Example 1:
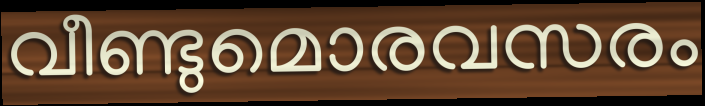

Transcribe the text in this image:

വീണ്ടുമൊരവസരം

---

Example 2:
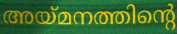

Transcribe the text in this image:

അയ്മനത്തിന്റെ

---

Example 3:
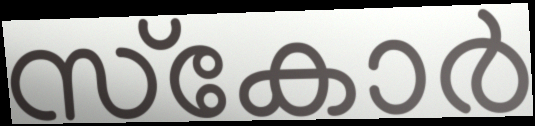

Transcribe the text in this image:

സ്‌കോർ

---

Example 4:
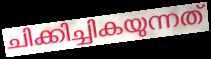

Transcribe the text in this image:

ചിക്കിച്ചികയുന്നത്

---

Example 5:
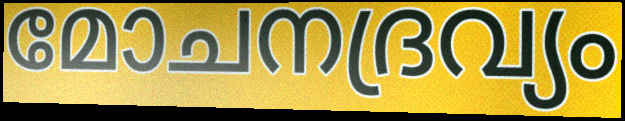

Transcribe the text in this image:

മോചനദ്രവ്യം